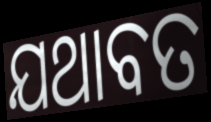
ଯଥାବତ